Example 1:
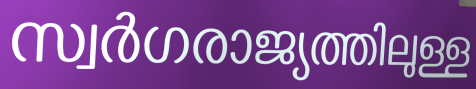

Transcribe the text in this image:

സ്വർഗരാജ്യത്തിലുള്ള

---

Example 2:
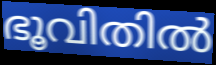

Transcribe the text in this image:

ഭൂവിതിൽ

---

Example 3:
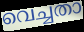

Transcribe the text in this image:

വെച്ചതാ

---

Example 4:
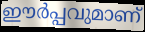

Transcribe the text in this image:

ഈർപ്പവുമാണ്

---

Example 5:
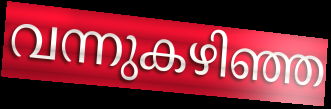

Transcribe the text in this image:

വന്നുകഴിഞ്ഞ